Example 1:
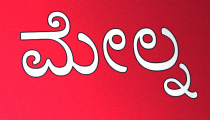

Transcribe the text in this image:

ಮೇಲ್ನ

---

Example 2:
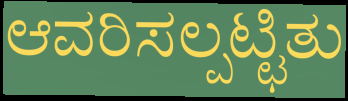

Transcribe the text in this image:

ಆವರಿಸಲ್ಪಟ್ಟಿತು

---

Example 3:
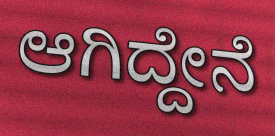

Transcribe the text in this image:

ಆಗಿದ್ದೇನೆ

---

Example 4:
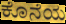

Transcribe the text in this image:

ಕೊನೆಯ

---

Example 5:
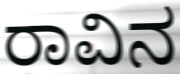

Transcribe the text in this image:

ರಾವಿನ